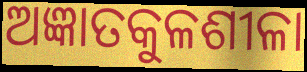
ଅଜ୍ଞାତକୁଳଶୀଳା